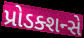
પ્રોડક્શન્સે